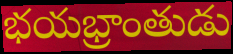
భయభ్రాంతుడు